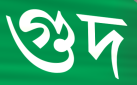
গুদ